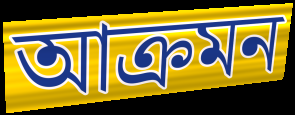
আক্ৰমন